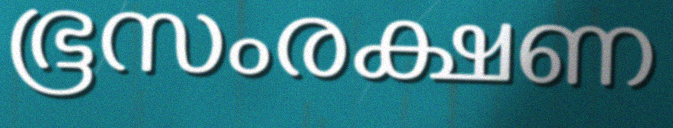
ഭൂസംരക്ഷണ